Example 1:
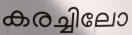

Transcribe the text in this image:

കരച്ചിലോ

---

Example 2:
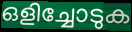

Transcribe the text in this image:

ഒളിച്ചോടുക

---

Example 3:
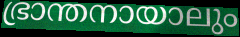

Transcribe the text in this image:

ഭ്രാന്തനായാലും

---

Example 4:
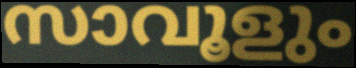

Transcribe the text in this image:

സാവൂളും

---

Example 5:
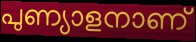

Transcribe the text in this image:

പുണ്യാളനാണ്